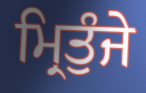
ਮ੍ਰਿਤੁੰਜੇ